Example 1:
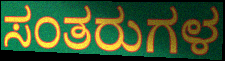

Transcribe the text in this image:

ಸಂತರುಗಳ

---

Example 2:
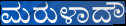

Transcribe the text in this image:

ಮರುಳಾದೌ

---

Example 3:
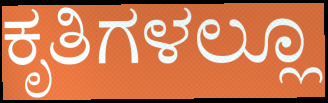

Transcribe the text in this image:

ಕೃತಿಗಳಲ್ಲೂ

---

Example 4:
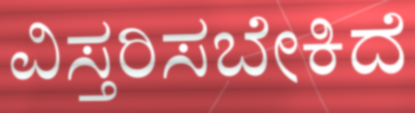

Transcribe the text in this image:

ವಿಸ್ತರಿಸಬೇಕಿದೆ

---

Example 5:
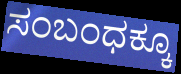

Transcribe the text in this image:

ಸಂಬಂಧಕ್ಕೂ